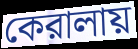
কেরালায়